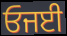
ਓਜਈ